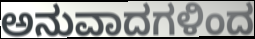
ಅನುವಾದಗಳಿಂದ